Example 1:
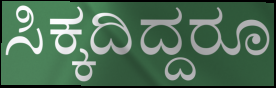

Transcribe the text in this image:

ಸಿಕ್ಕದಿದ್ದರೂ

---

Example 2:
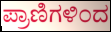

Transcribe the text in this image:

ಪ್ರಾಣಿಗಳಿಂದ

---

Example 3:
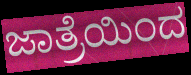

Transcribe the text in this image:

ಜಾತ್ರೆಯಿಂದ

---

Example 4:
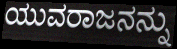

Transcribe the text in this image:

ಯುವರಾಜನನ್ನು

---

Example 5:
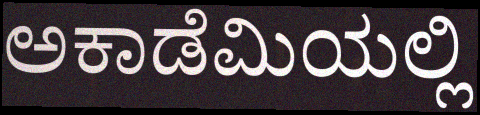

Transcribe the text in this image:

ಅಕಾಡೆಮಿಯಲ್ಲಿ